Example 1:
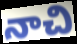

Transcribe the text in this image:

నాచి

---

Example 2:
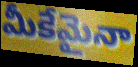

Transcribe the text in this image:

మీకేమైనా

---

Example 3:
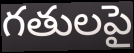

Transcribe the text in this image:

గతులపై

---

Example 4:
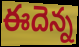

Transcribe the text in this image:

ఈదెన్న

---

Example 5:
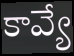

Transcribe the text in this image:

కావ్యే